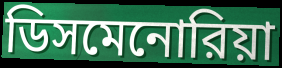
ডিসমেনোরিয়া